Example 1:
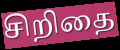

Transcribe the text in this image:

சிறிதை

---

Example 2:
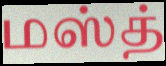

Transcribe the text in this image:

மஸ்த்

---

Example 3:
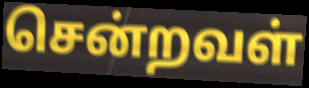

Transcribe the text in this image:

சென்றவள்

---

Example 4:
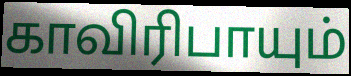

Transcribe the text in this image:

காவிரிபாயும்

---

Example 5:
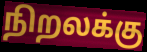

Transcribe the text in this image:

நிறலக்கு